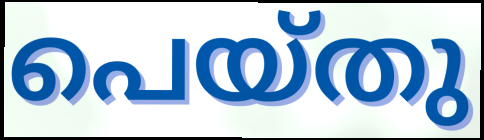
പെയ്തു